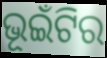
ଭୂଇଁଟିର